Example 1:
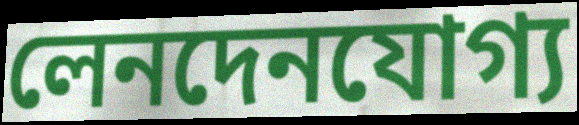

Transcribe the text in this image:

লেনদেনযোগ্য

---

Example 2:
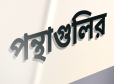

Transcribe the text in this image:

পন্থাগুলির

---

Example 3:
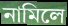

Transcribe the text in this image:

নামিলে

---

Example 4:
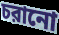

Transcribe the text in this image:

চরানো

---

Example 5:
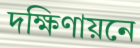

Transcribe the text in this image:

দক্ষিণায়নে